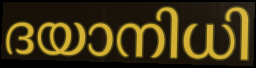
ദയാനിധി